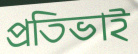
প্ৰতিভাই